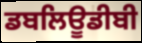
ਡਬਲਿਊਡੀਬੀ